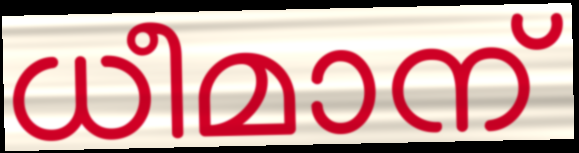
ധീമാന്